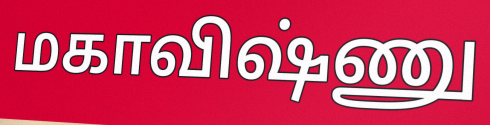
மகாவிஷ்ணு